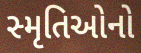
સ્મૃતિઓનો